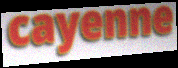
cayenne